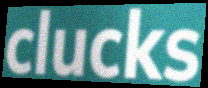
clucks